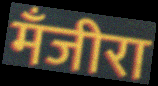
मँजीरा